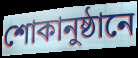
শোকানুষ্ঠানে